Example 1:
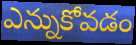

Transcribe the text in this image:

ఎన్నుకోవడం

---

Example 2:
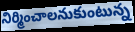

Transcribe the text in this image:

నిర్మించాలనుకుంటున్న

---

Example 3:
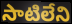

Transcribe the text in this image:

సాటిలేని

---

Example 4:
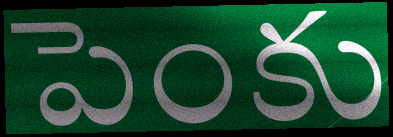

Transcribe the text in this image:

పెంకు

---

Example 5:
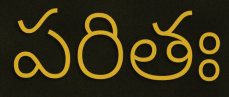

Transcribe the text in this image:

పరితః